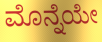
ಮೊನ್ನೆಯೇ